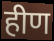
हीण